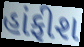
હાંફીશ